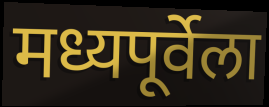
मध्यपूर्वेला